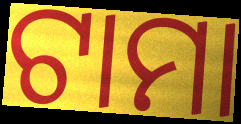
ଟାମା